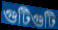
গুটিগুটি